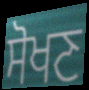
ਸੋਖਣ